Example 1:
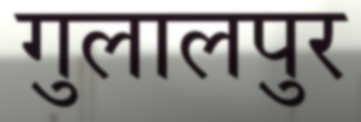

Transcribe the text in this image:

गुलालपुर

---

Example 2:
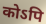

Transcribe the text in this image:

कोऽपि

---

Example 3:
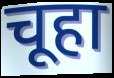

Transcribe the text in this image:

चूहा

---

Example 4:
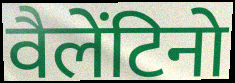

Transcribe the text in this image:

वैलेंटिनो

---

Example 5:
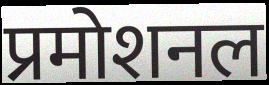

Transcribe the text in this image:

प्रमोशनल